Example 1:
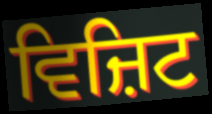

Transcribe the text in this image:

ਵਿਜ਼ਿਟ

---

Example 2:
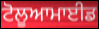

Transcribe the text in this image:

ਟੋਲੂਆਮਾਈਡ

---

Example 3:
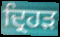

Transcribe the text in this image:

ਦ੍ਰਿਹੜ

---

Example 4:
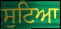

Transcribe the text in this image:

ਸੁਟਿਆ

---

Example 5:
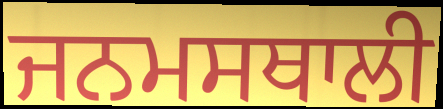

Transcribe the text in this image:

ਜਨਮਸਥਾਲੀ